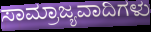
ಸಾಮ್ರಾಜ್ಯವಾದಿಗಳು